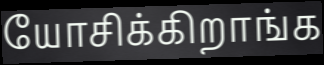
யோசிக்கிறாங்க